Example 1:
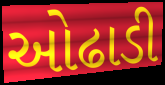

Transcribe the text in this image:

ઓઢાડી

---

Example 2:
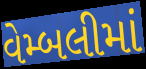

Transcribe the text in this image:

વેમ્બલીમાં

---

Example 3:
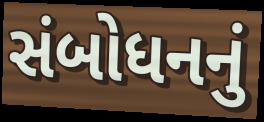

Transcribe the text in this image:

સંબોધનનું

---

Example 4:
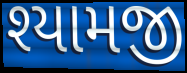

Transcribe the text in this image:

શ્યામજી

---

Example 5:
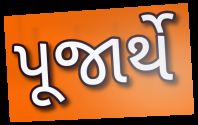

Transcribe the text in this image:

પૂજાર્થે